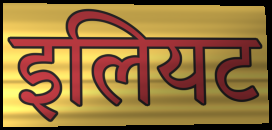
इलियट